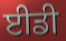
ਈਡੀ